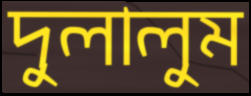
দুলালুম